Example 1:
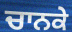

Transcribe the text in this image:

ਚਾਨਕੇ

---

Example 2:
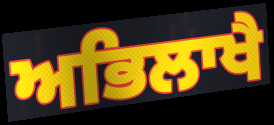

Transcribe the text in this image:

ਅਭਿਲਾਖੈ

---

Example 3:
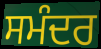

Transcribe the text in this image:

ਸਮੰਦਰ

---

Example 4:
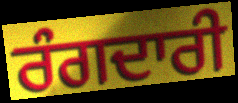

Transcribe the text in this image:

ਰੰਗਦਾਰੀ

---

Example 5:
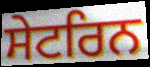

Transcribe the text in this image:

ਸੇਟਰਿਨ